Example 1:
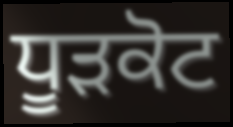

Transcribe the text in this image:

ਧੂੜਕੋਟ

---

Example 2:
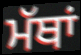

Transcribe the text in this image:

ਮੱਥਾਂ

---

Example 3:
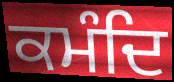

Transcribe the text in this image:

ਕਮੰਦਿ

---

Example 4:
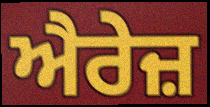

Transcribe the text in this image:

ਐਰੇਜ਼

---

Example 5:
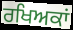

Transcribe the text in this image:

ਰਖਿਅਕਾਂ